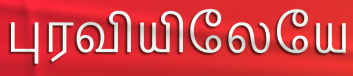
புரவியிலேயே